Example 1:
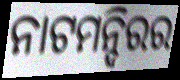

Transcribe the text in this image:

ନାଟମନ୍ଦିରର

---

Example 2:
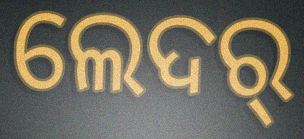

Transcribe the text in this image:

ଲେଦର୍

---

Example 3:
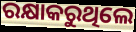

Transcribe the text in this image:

ରକ୍ଷାକରୁଥିଲେ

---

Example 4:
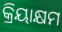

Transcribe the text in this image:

କ୍ରିୟାକ୍ଷମ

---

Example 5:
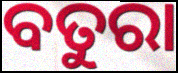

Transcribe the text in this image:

ବତୁରା